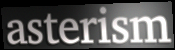
asterism